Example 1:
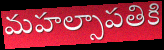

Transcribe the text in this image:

మహల్సాపతికి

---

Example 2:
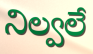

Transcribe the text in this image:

నిల్వలే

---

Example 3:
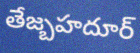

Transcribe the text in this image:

తేజ్బహదూర్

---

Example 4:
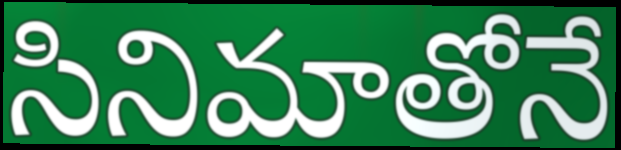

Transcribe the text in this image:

సినిమాతోనే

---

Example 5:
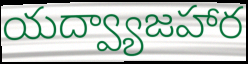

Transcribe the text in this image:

యద్వ్యాజహార